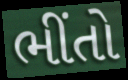
ભીંતો